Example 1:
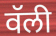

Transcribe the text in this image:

वॅली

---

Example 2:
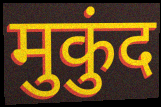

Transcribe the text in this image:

मुकुंद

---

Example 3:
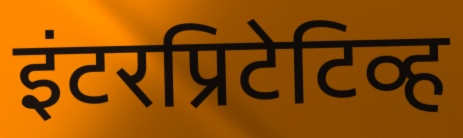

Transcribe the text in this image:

इंटरप्रिटेटिव्ह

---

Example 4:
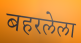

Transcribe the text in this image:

बहरलेला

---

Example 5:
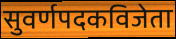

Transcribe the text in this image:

सुवर्णपदकविजेता